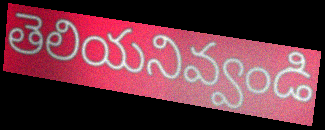
తెలియనివ్వండి